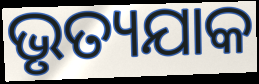
ଭୃତ୍ୟଯାକ